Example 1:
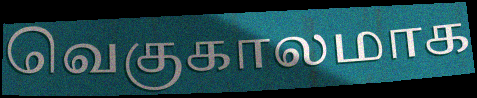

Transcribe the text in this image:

வெகுகாலமாக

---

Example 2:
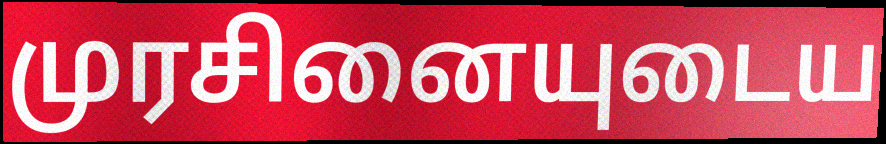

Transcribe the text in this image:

முரசினையுடைய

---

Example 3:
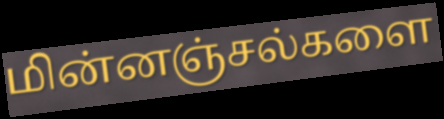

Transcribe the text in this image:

மின்னஞ்சல்களை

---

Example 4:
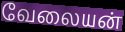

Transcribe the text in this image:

வேலையன்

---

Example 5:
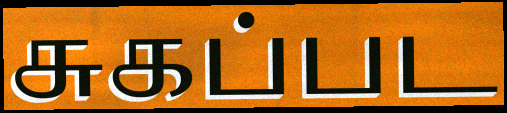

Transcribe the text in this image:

சுகப்பட